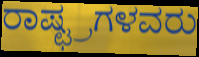
ರಾಷ್ಟ್ರಗಳವರು